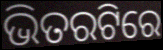
ଭିତରଟିରେ